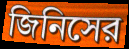
জিনিসের